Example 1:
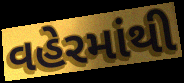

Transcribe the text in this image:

વહેરમાંથી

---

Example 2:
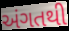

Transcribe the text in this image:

અંગતથી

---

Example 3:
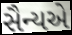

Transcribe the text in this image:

સૈન્યએ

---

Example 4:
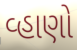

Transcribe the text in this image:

વ્હાણો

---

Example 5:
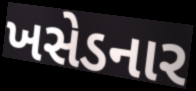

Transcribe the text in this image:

ખસેડનાર